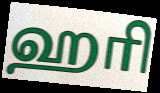
ஹரி